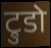
ट्रुडो